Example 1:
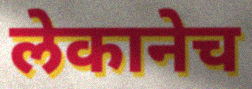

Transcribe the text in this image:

लेकानेच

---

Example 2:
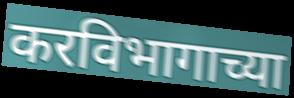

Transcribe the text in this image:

करविभागाच्या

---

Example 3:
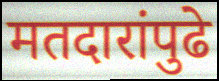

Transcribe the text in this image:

मतदारांपुढे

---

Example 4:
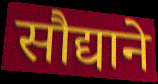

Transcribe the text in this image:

सौद्याने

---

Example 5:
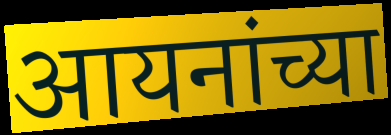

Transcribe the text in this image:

आयनांच्या